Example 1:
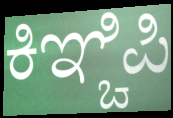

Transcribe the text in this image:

ಕಿಞ್ಚಿಪಿ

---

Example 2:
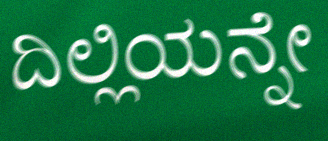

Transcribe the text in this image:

ದಿಲ್ಲಿಯನ್ನೇ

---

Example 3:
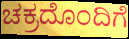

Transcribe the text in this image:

ಚಕ್ರದೊಂದಿಗೆ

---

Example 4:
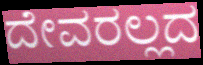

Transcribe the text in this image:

ದೇವರಲ್ಲದ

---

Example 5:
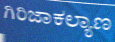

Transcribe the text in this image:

ಗಿರಿಜಾಕಲ್ಯಾಣ